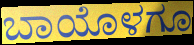
ಬಾಯೊಳಗೂ